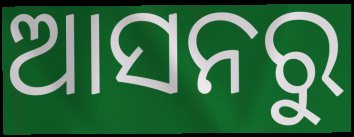
ଆସନରୁ